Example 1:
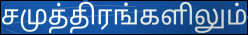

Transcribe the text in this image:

சமுத்திரங்களிலும்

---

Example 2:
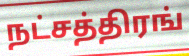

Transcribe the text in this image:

நட்சத்திரங்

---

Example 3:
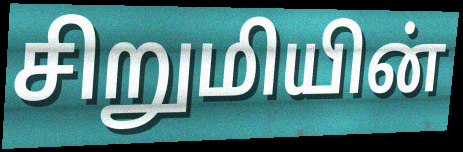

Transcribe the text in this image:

சிறுமியின்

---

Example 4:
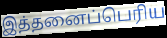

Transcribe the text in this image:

இத்தனைப்பெரிய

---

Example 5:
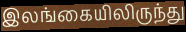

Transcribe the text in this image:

இலங்கையிலிருந்து